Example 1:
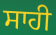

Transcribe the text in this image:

ਸਾਹੀ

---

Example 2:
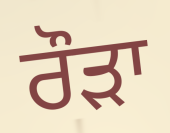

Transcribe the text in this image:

ਰੌੜਾ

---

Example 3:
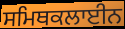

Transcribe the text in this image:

ਸਮਿਥਕਲਾਈਨ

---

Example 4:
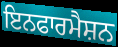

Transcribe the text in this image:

ਇਨਫਾਰਮੈਸ਼ਨ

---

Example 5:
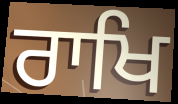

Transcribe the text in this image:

ਰਾਖਿ